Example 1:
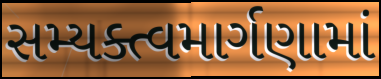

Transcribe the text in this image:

સમ્યક્ત્વમાર્ગણામાં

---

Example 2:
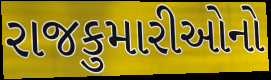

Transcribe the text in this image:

રાજકુમારીઓનો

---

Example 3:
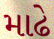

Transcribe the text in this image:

માઢે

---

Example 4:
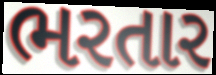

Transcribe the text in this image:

ભરતાર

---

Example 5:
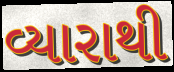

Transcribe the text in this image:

વ્યારાથી